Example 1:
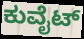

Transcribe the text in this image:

ಕುವೈಟ್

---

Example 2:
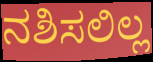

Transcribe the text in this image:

ನಶಿಸಲಿಲ್ಲ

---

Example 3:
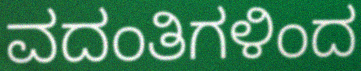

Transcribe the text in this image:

ವದಂತಿಗಳಿಂದ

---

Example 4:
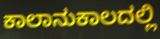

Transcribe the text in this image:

ಕಾಲಾನುಕಾಲದಲ್ಲಿ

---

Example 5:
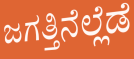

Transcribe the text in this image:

ಜಗತ್ತಿನೆಲ್ಲೆಡೆ